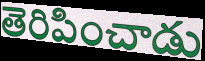
తెరిపించాడు